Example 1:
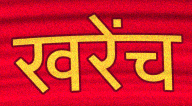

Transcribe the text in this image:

खरेंच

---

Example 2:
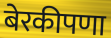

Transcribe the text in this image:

बेरकीपणा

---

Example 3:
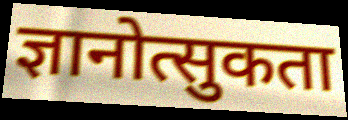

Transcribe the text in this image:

ज्ञानोत्सुकता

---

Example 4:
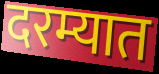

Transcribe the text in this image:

दरम्यात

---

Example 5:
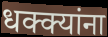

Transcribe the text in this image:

धक्क्यांना